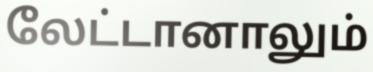
லேட்டானாலும்